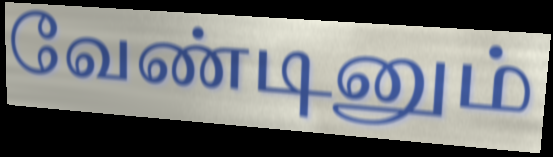
வேண்டினும்